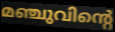
മഞ്ചുവിന്റെ